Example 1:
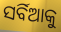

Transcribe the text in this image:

ସର୍ବିଆକୁ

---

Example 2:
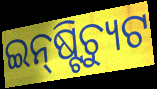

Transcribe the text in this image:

ଇନ୍‌ଷ୍ଟିଚ୍ୟୁଟ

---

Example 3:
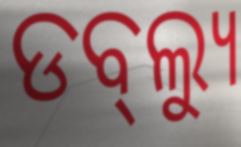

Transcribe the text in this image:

ଡବ୍‌ଲ୍ୟୁ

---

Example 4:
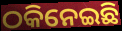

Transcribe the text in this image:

ଠକିନେଇଛି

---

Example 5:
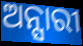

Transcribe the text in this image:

ଅନ୍ସାରୀ